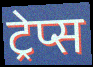
ट्रेप्स